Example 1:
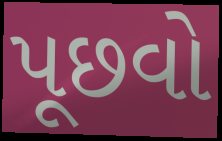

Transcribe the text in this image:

પૂછવો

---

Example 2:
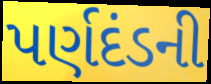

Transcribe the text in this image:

પર્ણદંડની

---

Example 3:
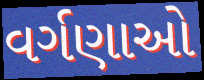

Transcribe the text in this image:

વર્ગણાઓ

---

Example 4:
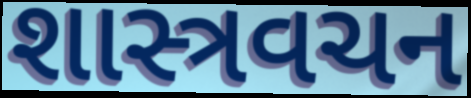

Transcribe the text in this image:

શાસ્ત્રવચન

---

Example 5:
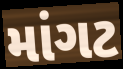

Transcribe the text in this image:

માંગટ